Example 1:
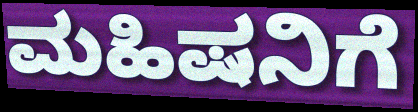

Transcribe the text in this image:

ಮಹಿಷನಿಗೆ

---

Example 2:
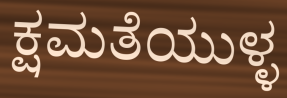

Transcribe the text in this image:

ಕ್ಷಮತೆಯುಳ್ಳ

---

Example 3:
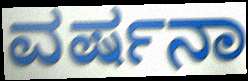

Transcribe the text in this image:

ವರ್ಷನಾ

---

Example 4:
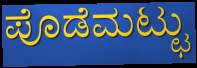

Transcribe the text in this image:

ಪೊಡೆಮಟ್ಟು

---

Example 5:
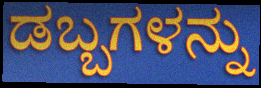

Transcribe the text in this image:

ಡಬ್ಬಗಳನ್ನು